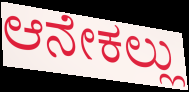
ಆನೇಕಲ್ಲು